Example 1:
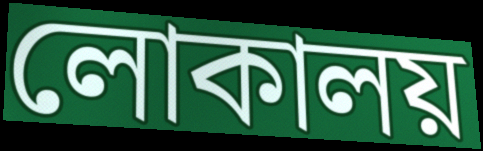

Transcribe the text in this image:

লোকালয়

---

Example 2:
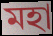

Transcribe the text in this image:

মহা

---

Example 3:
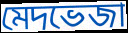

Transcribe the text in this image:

মেদভেজা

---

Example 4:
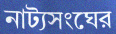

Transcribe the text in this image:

নাট্যসংঘের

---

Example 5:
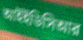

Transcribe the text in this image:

আইইডিসিআর